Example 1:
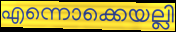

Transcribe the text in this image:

എന്നൊക്കെയല്ലി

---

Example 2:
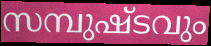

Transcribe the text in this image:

സമ്പുഷ്ടവും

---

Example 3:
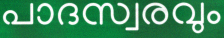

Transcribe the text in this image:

പാദസ്വരവും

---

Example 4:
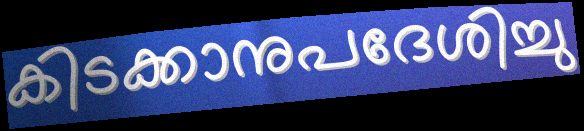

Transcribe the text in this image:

കിടക്കാനുപദേശിച്ചു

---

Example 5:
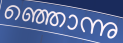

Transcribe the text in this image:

ഞ്ഞൊന്നു